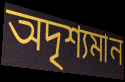
অদৃশ্যমান